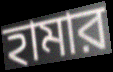
হামার